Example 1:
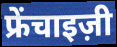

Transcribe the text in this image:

फ्रेंचाइज़ी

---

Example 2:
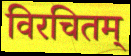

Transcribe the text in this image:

विरचितम्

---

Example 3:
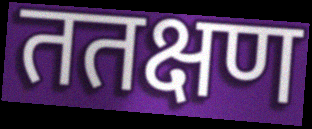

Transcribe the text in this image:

ततक्षण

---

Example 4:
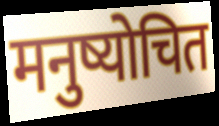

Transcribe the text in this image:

मनुष्योचित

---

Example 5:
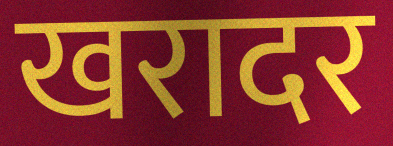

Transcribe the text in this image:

खरादर